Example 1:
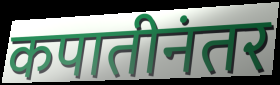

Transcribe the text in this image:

कपातीनंतर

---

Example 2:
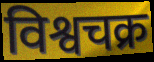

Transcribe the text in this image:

विश्वचक्र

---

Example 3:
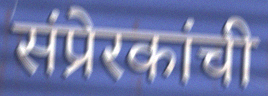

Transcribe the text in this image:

संप्रेरकांची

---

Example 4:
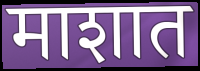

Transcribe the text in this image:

माशात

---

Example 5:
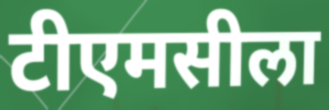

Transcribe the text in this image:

टीएमसीला